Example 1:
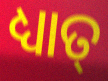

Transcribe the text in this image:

ଧ୍ୟାତ୍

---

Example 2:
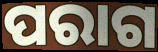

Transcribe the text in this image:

ପରାଗ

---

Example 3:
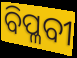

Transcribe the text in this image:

ବିପ୍ଳବୀ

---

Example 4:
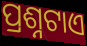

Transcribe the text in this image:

ପ୍ରଶ୍ନଟାଏ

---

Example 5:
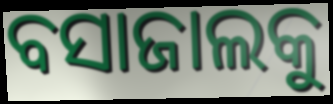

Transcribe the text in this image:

ବସାଜାଲକୁ